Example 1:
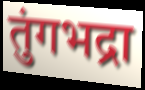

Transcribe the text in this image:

तुंगभद्रा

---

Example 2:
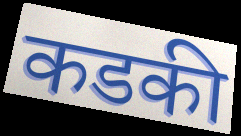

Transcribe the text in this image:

कडकी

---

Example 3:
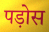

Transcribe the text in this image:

पड़ोस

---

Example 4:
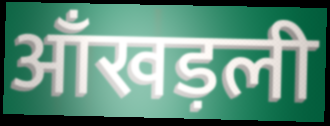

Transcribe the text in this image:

आँखड़ली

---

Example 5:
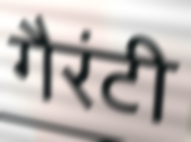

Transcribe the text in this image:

गैरंटी